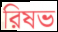
রিষভ